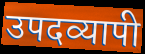
उपदव्यापी